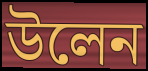
উলেন